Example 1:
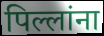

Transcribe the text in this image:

पिल्लांना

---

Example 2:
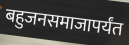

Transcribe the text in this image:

बहुजनसमाजापर्यंत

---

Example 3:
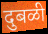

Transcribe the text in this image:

दुबळी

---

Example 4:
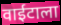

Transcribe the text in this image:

वाईटाला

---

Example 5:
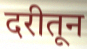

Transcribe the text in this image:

दरीतून